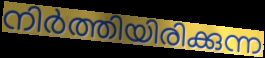
നിർത്തിയിരിക്കുന്ന